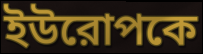
ইউরোপকে